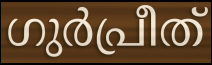
ഗുർപ്രീത്